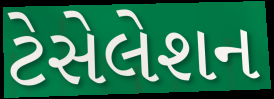
ટેસેલેશન